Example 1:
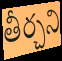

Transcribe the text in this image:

తీర్చని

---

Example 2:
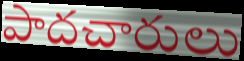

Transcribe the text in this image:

పాదచారులు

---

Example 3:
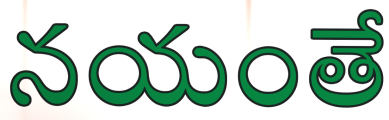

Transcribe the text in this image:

నయంతే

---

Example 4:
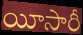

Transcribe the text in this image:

యీసారీ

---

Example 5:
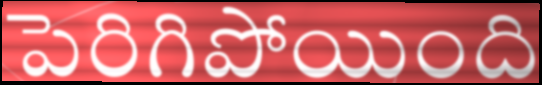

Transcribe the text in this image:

పెరిగిపోయింది